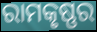
ରାମକୃଷ୍ଣର